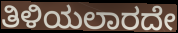
ತಿಳಿಯಲಾರದೇ